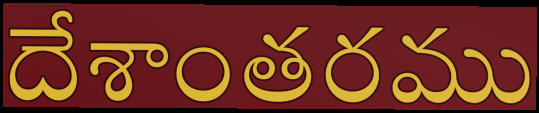
దేశాంతరము